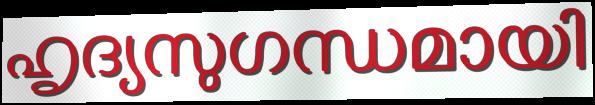
ഹൃദ്യസുഗന്ധമായി